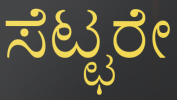
ಸೆಟ್ಟರೇ